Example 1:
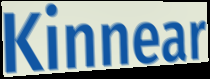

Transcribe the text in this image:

Kinnear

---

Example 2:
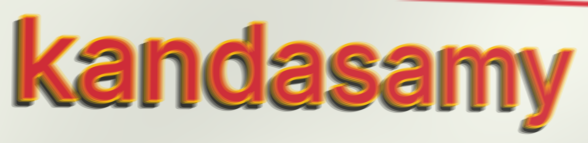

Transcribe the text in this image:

kandasamy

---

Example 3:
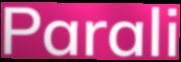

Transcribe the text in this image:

Parali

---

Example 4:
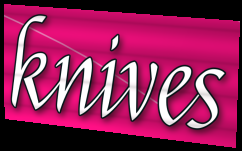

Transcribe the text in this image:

knives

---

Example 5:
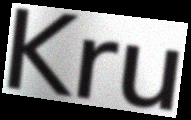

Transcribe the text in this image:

Kru